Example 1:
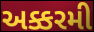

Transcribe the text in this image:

અક્કરમી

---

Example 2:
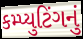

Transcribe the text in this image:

કમ્પ્યુટિંગનું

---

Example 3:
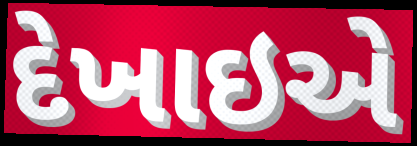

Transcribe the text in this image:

દેખાઇએ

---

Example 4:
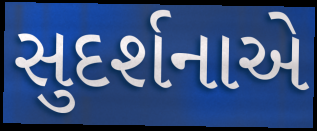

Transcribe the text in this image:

સુદર્શનાએ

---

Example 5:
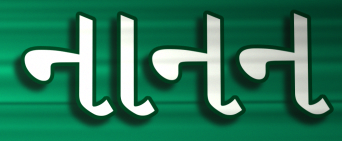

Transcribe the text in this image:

નાનન